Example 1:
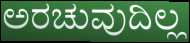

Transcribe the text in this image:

ಅರಚುವುದಿಲ್ಲ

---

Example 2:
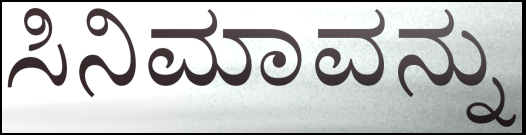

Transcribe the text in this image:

ಸಿನಿಮಾವನ್ನು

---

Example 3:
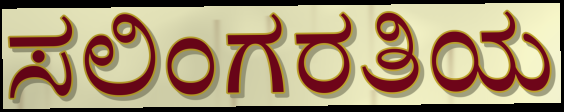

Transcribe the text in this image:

ಸಲಿಂಗರತಿಯ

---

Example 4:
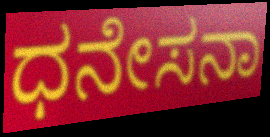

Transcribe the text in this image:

ಧನೇಸನಾ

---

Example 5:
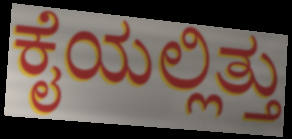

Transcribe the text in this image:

ಕೈಯಲ್ಲಿತ್ತು